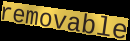
removable